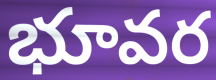
భూవర